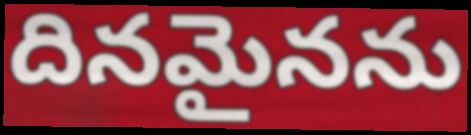
దినమైనను